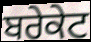
ਬਰੇਕੇਟ